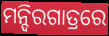
ମନ୍ଦିରଗାତ୍ରରେ